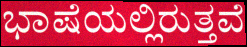
ಭಾಷೆಯಲ್ಲಿರುತ್ತವೆ